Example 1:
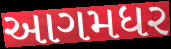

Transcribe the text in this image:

આગમધર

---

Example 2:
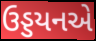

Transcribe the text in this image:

ઉડ્ડયનએ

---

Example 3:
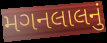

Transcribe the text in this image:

મગનલાલનું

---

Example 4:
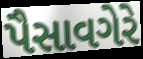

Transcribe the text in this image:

પૈસાવગેરે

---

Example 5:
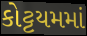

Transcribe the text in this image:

કોટ્ટયમમાં